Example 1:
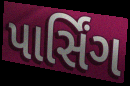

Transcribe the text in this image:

પાર્સિંગ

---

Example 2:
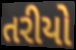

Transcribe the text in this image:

તરીયો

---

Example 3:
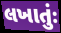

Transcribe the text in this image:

લખાતુંઃ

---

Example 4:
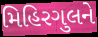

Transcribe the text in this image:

મિહિરગુલને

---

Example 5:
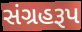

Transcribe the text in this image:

સંગ્રહરૂપ